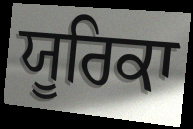
ਯੂਰਿਕਾ